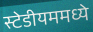
स्टेडीयममध्ये